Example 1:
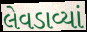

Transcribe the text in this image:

લેવડાવ્યાં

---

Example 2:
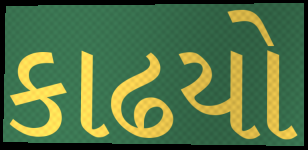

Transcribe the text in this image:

કાઢયો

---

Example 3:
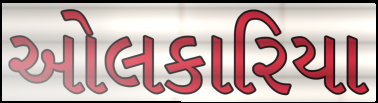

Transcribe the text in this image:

ઓલકારિયા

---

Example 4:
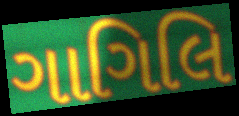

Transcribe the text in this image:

ગાગિલિ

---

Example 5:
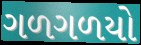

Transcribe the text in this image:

ગળગળયો